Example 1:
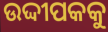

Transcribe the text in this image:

ଉଦ୍ଦୀପକକୁ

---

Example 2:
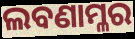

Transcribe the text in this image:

ଲବଣାମ୍ଳର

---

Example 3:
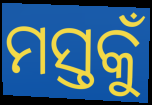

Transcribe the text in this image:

ମସ୍ତକୁଁ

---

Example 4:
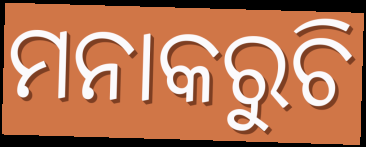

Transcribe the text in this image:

ମନାକରୁଚି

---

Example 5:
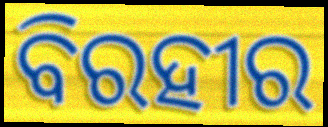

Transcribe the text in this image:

ବିରହୀର